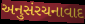
અનુસંરચનાવાદ